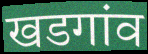
खडगांव